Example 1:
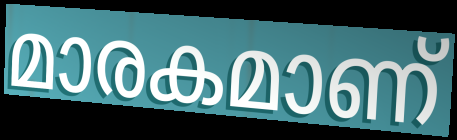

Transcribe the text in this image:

മാരകമാണ്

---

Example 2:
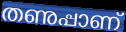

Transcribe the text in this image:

തണുപ്പാണ്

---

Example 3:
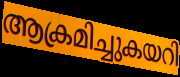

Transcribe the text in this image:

ആക്രമിച്ചുകയറി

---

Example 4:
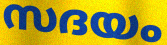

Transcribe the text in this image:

സദയം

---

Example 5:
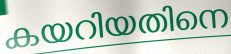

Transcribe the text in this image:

കയറിയതിനെ